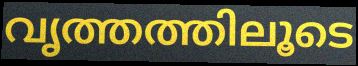
വൃത്തത്തിലൂടെ